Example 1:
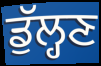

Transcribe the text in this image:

ਡੁੱਲ੍ਹਣ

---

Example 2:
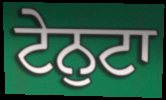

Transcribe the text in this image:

ਟੇਨੁਟਾ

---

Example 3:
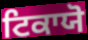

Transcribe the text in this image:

ਟਿਕਾਯੋ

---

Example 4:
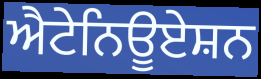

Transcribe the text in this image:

ਐਟੇਨਿਊਏਸ਼ਨ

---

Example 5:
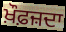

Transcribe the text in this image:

ਖ਼ੌਫ਼ਜ਼ਦਾ